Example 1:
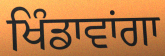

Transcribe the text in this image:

ਖਿੰਡਾਵਾਂਗਾ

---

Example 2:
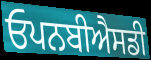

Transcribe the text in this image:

ਓਪਨਬੀਐਸਡੀ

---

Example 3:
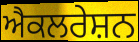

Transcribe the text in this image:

ਐਕਲਰੇਸ਼ਨ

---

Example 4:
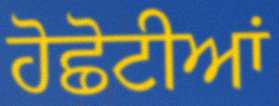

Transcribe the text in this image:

ਹੋਛੋਟੀਆਂ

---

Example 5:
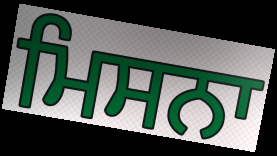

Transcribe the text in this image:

ਮਿਸਨਾ